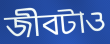
জীবটাও